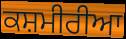
ਕਸ਼ਮੀਰੀਆ